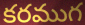
కరముగ